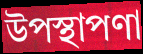
উপস্থাপণা